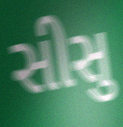
સીસુ